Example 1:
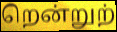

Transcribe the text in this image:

றென்றுற்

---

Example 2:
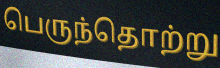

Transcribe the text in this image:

பெருந்தொற்று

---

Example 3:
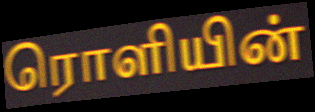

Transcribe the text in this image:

ரொளியின்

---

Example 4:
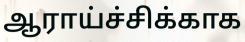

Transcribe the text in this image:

ஆராய்ச்சிக்காக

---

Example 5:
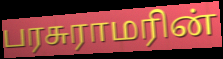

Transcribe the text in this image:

பரசுராமரின்